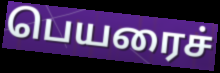
பெயரைச்